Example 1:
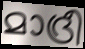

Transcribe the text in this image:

മാദ്രീ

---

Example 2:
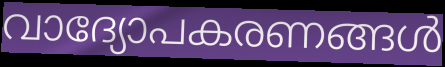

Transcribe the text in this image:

വാദ്യോപകരണങ്ങൾ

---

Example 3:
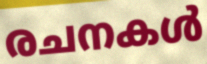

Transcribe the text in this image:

രചനകൾ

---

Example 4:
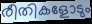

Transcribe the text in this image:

രീതികളോടും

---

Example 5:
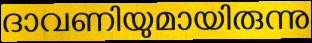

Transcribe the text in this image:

ദാവണിയുമായിരുന്നു